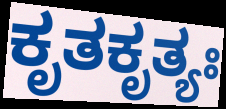
ಕೃತಕೃತ್ಯಃ